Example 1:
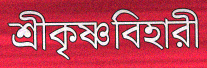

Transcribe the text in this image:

শ্রীকৃষ্ণবিহারী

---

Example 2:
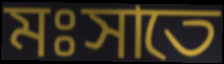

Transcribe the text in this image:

মঃসাতে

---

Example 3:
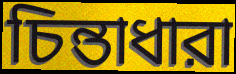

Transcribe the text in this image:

চিন্তাধারা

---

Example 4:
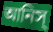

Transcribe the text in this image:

আনিস্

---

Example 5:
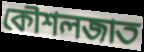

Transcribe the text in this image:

কৌশলজাত